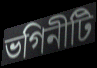
ভগিনীটি